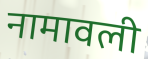
नामावली